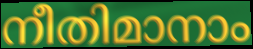
നീതിമാനാം